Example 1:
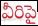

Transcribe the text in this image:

వీరిపై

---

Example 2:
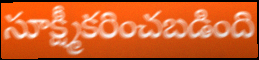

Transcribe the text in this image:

సూక్ష్మీకరించబడింది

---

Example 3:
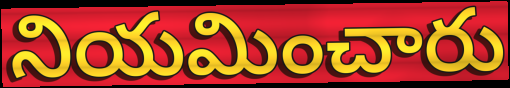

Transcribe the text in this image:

నియమించారు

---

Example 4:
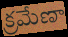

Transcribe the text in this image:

క్రమేణా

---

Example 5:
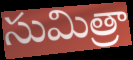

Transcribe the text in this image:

సుమిత్రా